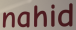
nahid